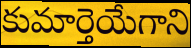
కుమార్తెయేగాని